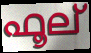
ഫൂല്